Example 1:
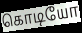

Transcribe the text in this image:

கொடியோ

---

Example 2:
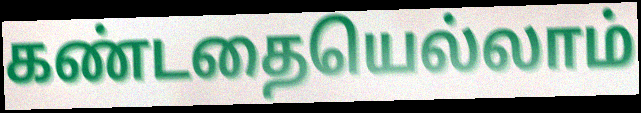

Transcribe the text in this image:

கண்டதையெல்லாம்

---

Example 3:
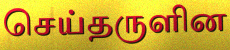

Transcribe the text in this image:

செய்தருளின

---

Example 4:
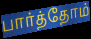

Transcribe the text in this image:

பார்த்தோம்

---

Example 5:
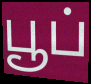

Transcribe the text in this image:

பூப்